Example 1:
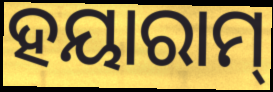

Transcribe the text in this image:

ହୟାରାମ୍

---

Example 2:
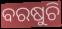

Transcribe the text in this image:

ବରଷୁଚି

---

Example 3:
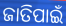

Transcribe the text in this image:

ଜାତିପାଇଁ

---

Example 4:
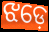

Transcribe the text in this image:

ଝଡ଼େ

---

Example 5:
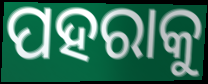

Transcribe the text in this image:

ପହରାକୁ